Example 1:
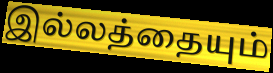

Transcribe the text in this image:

இல்லத்தையும்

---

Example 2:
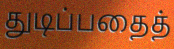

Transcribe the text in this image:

துடிப்பதைத்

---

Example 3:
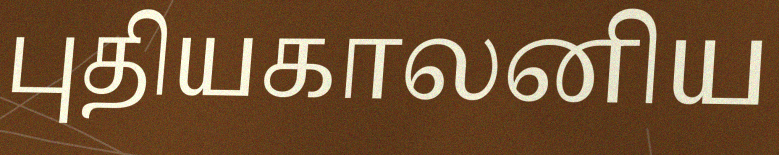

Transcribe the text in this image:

புதியகாலனிய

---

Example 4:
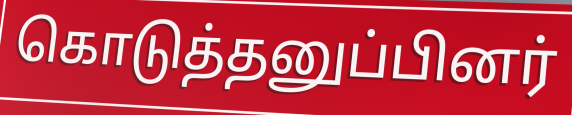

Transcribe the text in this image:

கொடுத்தனுப்பினர்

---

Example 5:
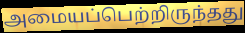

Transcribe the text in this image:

அமையப்பெற்றிருந்தது